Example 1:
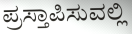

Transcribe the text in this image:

ಪ್ರಸ್ತಾಪಿಸುವಲ್ಲಿ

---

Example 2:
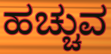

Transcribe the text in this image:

ಹಚ್ಚುವ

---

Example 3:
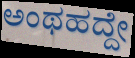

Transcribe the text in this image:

ಅಂಥಹದ್ದೇ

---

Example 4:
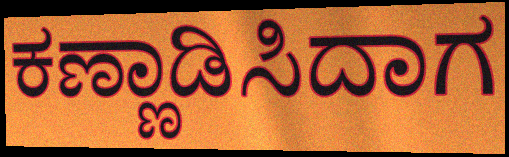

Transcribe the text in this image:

ಕಣ್ಣಾಡಿಸಿದಾಗ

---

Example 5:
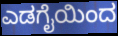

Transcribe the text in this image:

ಎಡಗೈಯಿಂದ